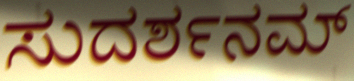
ಸುದರ್ಶನಮ್